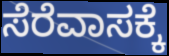
ಸೆರೆವಾಸಕ್ಕೆ